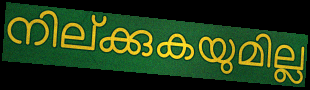
നില്ക്കുകയുമില്ല